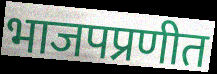
भाजपप्रणीत